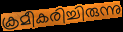
ക്രമീകരിച്ചിരുന്നു